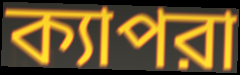
ক্যাপরা